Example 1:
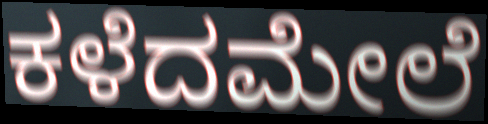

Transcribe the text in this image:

ಕಳೆದಮೇಲೆ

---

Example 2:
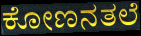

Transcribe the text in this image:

ಕೋಣನತಲೆ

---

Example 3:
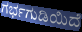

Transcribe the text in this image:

ಗರ್ಭಗುಡಿಯಿದೆ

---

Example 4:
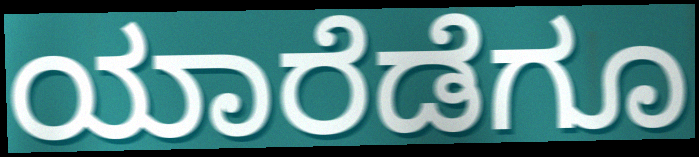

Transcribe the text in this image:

ಯಾರೆಡೆಗೂ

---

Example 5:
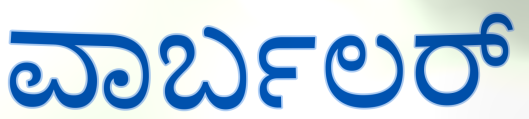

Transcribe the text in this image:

ವಾರ್ಬಲರ್